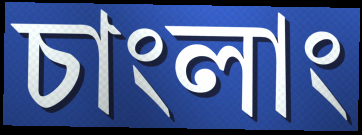
চাংলাং